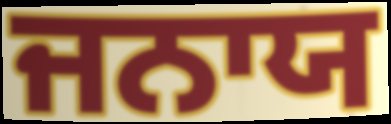
ਜਨਾਯ